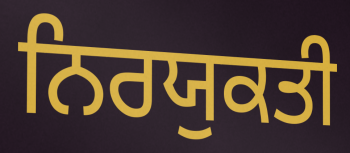
ਨਿਰਯੁਕਤੀ